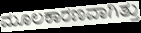
ಮೂಲಕಾರಣವಾಗಿತ್ತು